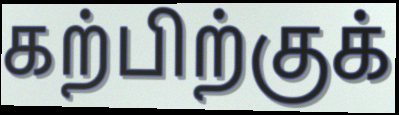
கற்பிற்குக்